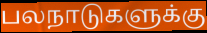
பலநாடுகளுக்கு